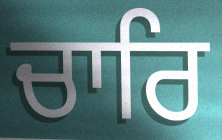
ਚਾਰਿ